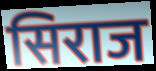
सिराज